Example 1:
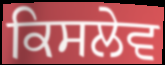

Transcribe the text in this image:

ਕਿਸਲੇਵ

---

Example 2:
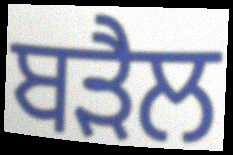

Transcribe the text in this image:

ਬੜੈਲ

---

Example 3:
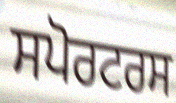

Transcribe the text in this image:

ਸਪੋਰਟਰਸ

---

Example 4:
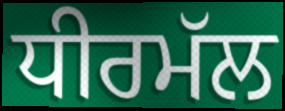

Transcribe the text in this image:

ਧੀਰਮੱਲ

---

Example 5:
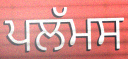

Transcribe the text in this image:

ਪਲੱਮਸ